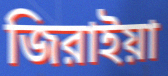
জিরাইয়া